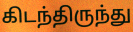
கிடந்திருந்து